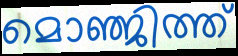
മൊഞ്ജിത്ത്